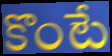
కొంటే